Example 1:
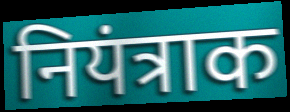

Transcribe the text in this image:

नियंत्राक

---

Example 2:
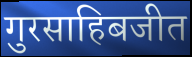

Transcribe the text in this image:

गुरसाहिबजीत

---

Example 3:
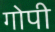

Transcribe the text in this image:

गोपी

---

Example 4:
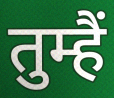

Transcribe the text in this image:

तुम्हैं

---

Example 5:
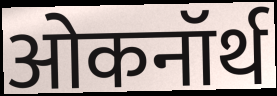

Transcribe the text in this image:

ओकनॉर्थ